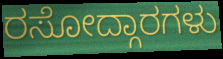
ರಸೋದ್ಗಾರಗಳು